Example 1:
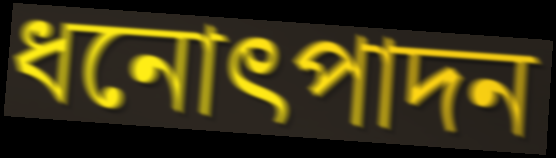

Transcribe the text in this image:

ধনোৎপাদন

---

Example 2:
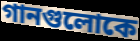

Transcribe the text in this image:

গানগুলোকে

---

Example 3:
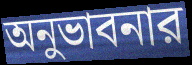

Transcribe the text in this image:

অনুভাবনার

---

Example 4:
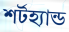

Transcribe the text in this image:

শর্টহ্যান্ড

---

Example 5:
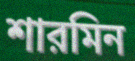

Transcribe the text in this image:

শারমিন